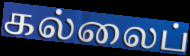
கல்லைப்